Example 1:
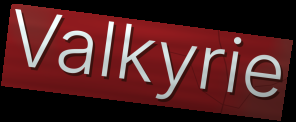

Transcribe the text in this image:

Valkyrie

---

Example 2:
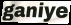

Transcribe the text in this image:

ganiye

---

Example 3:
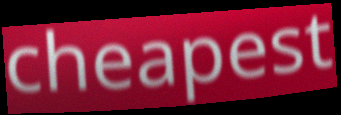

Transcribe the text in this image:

cheapest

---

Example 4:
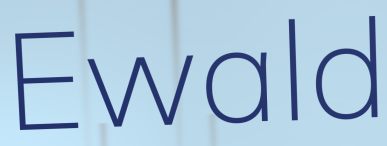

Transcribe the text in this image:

Ewald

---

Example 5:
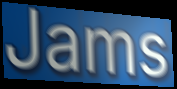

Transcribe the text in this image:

Jams